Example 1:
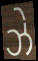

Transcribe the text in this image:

ઝે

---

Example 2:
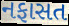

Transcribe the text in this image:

નફાસત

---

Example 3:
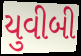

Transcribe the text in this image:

યુવીબી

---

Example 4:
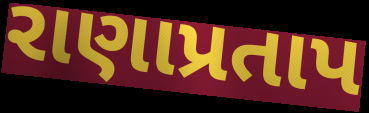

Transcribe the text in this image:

રાણાપ્રતાપ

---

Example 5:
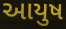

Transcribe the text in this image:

આયુષ